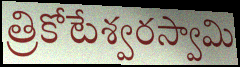
త్రికోటేశ్వరస్వామి